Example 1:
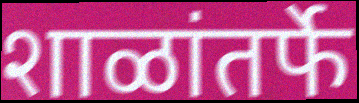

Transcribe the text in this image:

शाळांतर्फे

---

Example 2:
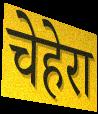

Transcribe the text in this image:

चेहेरा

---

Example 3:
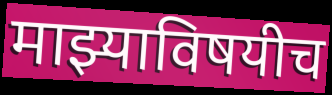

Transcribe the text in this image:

माझ्याविषयीच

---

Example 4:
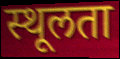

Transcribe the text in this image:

स्थूलता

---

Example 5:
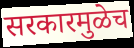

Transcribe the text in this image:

सरकारमुळेच